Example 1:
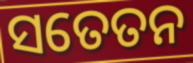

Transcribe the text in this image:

ସତେତନ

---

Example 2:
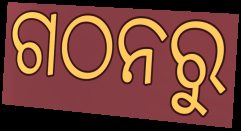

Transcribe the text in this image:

ଗଠନରୁ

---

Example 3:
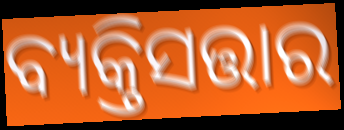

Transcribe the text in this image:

ବ୍ୟକ୍ତିସତ୍ତାର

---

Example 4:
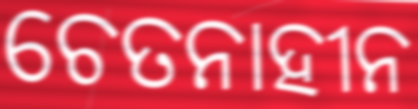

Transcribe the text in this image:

ଚେତନାହୀନ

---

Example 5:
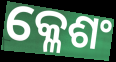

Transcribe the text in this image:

କ୍ଳେଶଂ